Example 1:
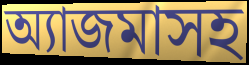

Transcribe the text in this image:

অ্যাজমাসহ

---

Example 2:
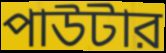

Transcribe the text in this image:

পাউটার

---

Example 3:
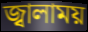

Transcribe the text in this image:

জ্বালাময়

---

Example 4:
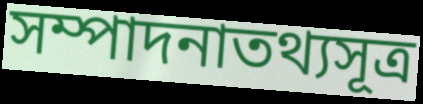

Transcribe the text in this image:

সম্পাদনাতথ্যসূত্র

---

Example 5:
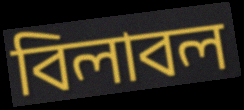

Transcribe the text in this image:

বিলাবল